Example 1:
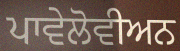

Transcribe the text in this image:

ਪਾਵੇਲੋਵੀਅਨ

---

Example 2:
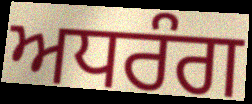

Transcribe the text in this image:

ਅਧਰੰਗ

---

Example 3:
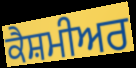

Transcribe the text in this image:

ਕੈਸ਼ਮੀਅਰ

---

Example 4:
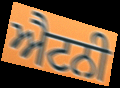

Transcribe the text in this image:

ਐਟਨੀ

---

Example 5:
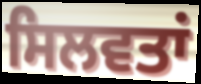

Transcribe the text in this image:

ਸਿਲਵਤਾਂ